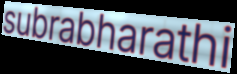
subrabharathi